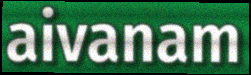
aivanam